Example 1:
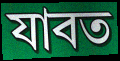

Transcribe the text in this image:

যাবত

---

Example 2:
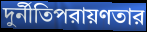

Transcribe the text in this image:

দুর্নীতিপরায়ণতার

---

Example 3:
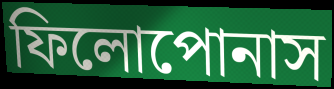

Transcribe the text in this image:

ফিলোপোনাস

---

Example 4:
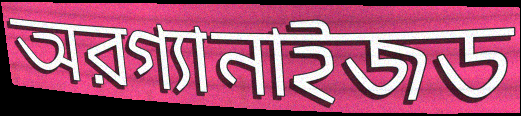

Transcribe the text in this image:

অরগ্যানাইজড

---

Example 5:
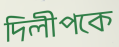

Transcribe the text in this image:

দিলীপকে